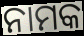
ନାମକ